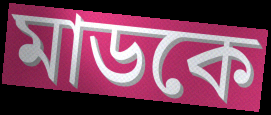
মাডকে